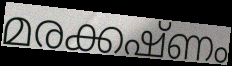
മരക്കഷ്ണം